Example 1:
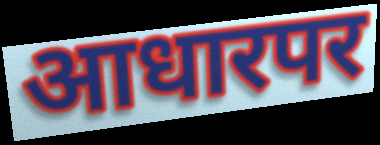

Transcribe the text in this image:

आधारपर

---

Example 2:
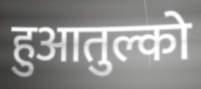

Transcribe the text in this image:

हुआतुल्को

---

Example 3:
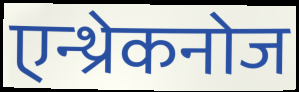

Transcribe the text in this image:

एन्थ्रेकनोज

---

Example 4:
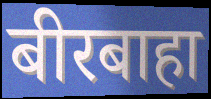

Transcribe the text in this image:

बीरबाहा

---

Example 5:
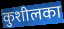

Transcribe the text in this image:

कुशीलका